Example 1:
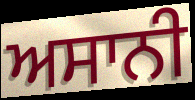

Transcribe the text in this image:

ਅਸਾਨੀ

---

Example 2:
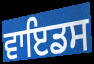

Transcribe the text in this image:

ਵਾਇਡਸ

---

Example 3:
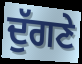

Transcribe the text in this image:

ਦੁੱਗਣੇ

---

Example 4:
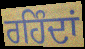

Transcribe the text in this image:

ਰਹਿੰਦਾਂ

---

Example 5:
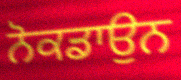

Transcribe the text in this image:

ਨੋਕਡਾਉਨ